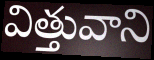
విత్తువాని